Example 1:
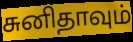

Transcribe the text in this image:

சுனிதாவும்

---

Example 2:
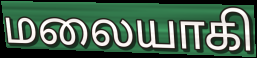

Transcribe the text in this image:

மலையாகி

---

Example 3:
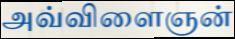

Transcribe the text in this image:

அவ்விளைஞன்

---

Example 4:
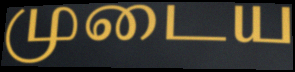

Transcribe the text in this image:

முடைய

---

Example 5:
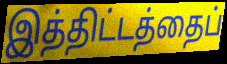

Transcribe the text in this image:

இத்திட்டத்தைப்